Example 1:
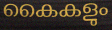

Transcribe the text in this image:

കൈകളും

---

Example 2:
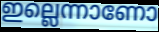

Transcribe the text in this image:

ഇല്ലെന്നാണോ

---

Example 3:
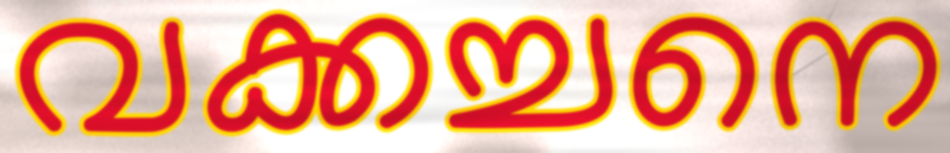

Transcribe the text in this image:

വക്കച്ചനെ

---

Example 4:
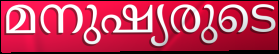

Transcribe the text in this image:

മനുഷ്യരുടെ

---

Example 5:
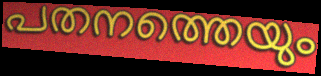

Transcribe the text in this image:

പതനത്തെയും